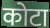
कोटा